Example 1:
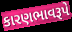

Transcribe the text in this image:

કારણભાવરૂપે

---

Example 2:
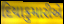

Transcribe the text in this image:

દિયાકુમારીએ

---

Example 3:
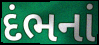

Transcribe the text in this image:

દંભનાં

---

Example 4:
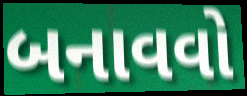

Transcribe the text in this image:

બનાવવો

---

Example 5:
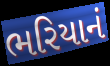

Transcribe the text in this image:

ભરિયાનં